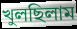
খুলছিলাম